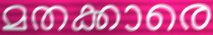
മതക്കാരെ